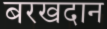
बरखदान